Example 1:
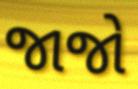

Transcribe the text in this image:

જાજો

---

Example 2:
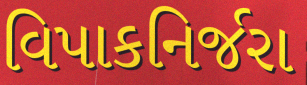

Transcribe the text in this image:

વિપાકનિર્જરા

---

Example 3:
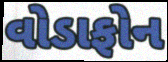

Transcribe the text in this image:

વોડાફોન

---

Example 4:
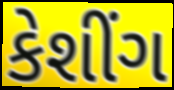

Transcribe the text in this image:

કેશીંગ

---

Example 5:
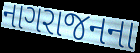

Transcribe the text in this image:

નાગરાજનના